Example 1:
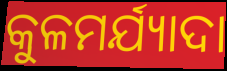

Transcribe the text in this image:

କୁଳମର୍ଯ୍ୟାଦା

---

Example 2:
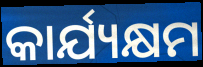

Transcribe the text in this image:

କାର୍ଯ୍ୟକ୍ଷମ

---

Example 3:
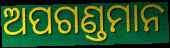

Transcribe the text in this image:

ଅପଗଣ୍ଡମାନ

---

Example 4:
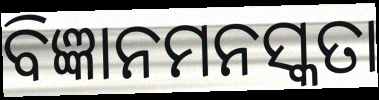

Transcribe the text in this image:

ବିଜ୍ଞାନମନସ୍କତା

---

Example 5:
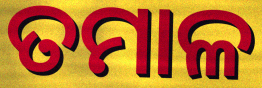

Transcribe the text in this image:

ତମାଳ